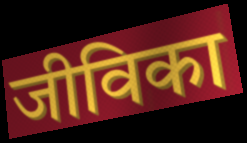
जीविका